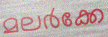
മലർക്കേ